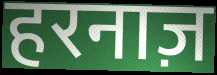
हरनाज़